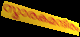
സ്മാരകമന്ദിരം